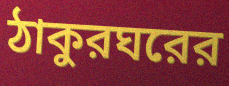
ঠাকুরঘরের